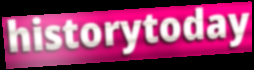
historytoday